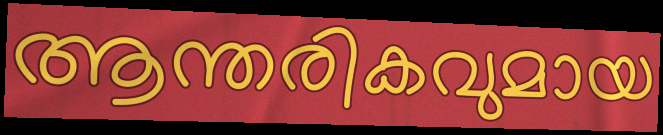
ആന്തരികവുമായ